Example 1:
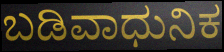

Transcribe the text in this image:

ಬಡಿವಾಧುನಿಕ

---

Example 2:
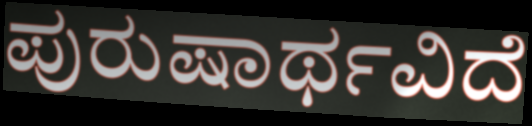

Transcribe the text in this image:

ಪುರುಷಾರ್ಥವಿದೆ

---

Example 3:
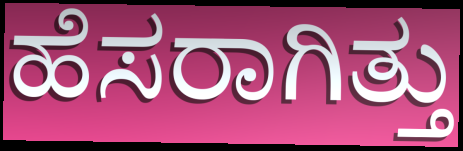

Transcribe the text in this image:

ಹೆಸರಾಗಿತ್ತು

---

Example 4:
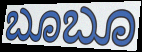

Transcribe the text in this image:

ಬೂಬೂ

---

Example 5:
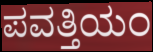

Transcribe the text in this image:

ಪವತ್ತಿಯಂ